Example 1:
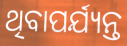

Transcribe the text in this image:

ଥିବାପର୍ଯ୍ୟନ୍ତ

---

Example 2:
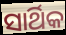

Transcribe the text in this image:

ସାର୍ଥିକ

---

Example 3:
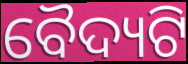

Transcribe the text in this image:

ବୈଦ୍ୟଟି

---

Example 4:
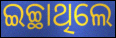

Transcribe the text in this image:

ଇଚ୍ଛାଥିଲେ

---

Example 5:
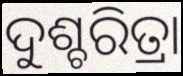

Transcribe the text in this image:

ଦୁଶ୍ଚରିତ୍ରା